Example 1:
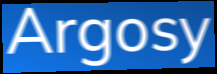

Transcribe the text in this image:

Argosy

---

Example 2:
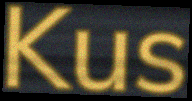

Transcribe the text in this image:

Kus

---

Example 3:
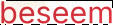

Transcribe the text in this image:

beseem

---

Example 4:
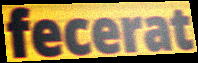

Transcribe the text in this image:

fecerat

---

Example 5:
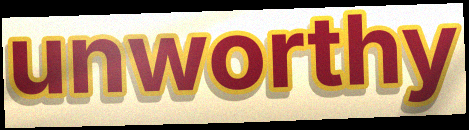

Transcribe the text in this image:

unworthy